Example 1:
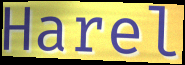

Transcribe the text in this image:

Harel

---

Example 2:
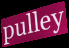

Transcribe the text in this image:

pulley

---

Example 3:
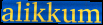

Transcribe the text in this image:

alikkum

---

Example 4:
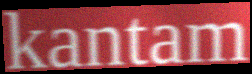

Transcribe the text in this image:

kantam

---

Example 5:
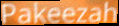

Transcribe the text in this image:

Pakeezah